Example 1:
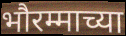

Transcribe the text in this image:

भौरम्माच्या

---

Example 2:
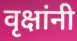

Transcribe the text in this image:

वृक्षांनी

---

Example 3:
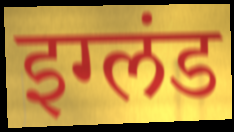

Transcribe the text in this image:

इग्लंड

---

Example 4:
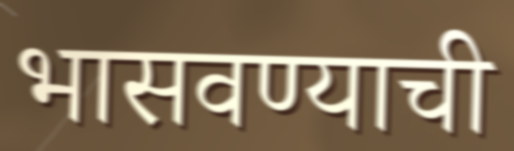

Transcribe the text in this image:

भासवण्याची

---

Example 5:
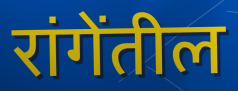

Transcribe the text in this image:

रांगेंतील